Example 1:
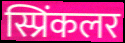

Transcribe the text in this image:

स्प्रिंकलर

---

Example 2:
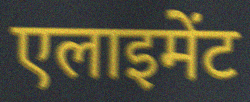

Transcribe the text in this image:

एलाइमेंट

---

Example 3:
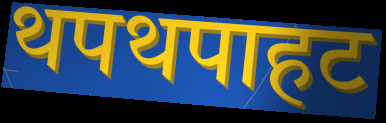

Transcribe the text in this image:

थपथपाहट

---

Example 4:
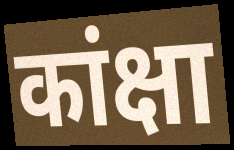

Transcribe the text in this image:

कांक्षा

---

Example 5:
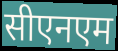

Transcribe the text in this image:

सीएनएम